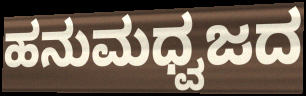
ಹನುಮಧ್ವಜದ